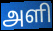
அளி